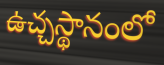
ఉచ్చస్థానంలో